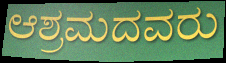
ಆಶ್ರಮದವರು